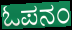
ಓಪನಂ